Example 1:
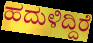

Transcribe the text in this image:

ಹದುಳಿದ್ದಿರೆ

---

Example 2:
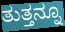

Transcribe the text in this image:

ತುತ್ತನ್ನೂ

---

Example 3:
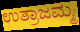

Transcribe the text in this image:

ಉತ್ರಾಜಮ್ಮ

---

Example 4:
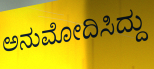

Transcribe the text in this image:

ಅನುಮೋದಿಸಿದ್ದು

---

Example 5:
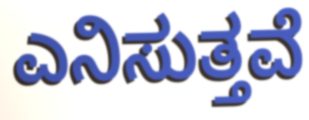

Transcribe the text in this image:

ಎನಿಸುತ್ತವೆ